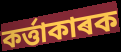
কৰ্ত্তাকাৰক